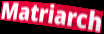
Matriarch